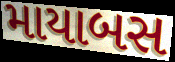
માયાબસ